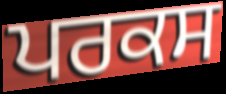
ਪਰਕਸ